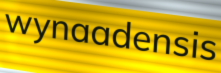
wynaadensis